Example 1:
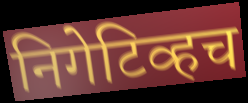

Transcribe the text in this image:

निगेटिव्हच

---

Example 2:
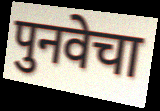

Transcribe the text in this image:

पुनवेचा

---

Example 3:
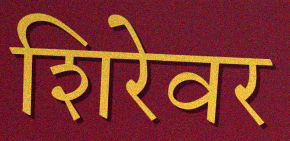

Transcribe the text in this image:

शिरेवर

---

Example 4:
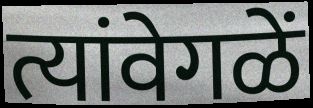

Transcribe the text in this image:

त्यांवेगळें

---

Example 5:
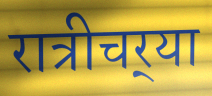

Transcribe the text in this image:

रात्रीचर्या